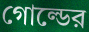
গোল্ডের